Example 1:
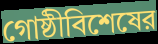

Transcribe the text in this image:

গোষ্ঠীবিশেষের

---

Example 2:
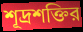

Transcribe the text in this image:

শূদ্রশক্তির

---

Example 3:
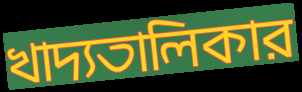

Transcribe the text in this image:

খাদ্যতালিকার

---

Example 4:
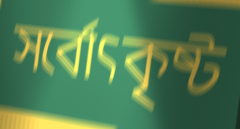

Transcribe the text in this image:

সর্বোৎকৃষ্ট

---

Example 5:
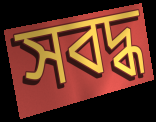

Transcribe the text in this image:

সবদ্ধ